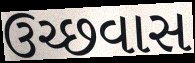
ઉચ્છવાસ